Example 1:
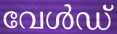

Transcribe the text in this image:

വേൾഡ്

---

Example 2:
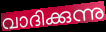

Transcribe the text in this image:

വാദിക്കുന്നു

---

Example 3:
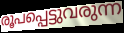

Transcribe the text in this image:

രൂപപ്പെട്ടുവരുന്ന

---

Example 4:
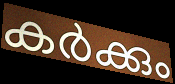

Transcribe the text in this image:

കർക്കും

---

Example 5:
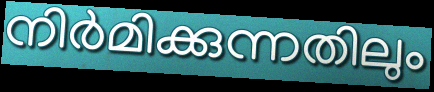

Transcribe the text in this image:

നിർമിക്കുന്നതിലും